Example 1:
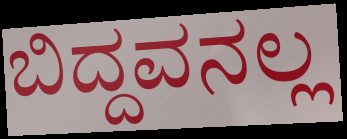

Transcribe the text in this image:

ಬಿದ್ದವನಲ್ಲ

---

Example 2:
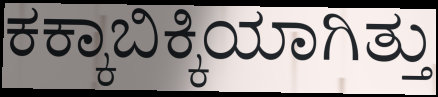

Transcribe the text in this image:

ಕಕ್ಕಾಬಿಕ್ಕಿಯಾಗಿತ್ತು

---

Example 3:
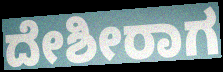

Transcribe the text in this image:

ದೇಶೀರಾಗ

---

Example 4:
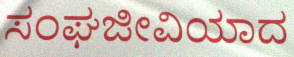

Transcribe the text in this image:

ಸಂಘಜೀವಿಯಾದ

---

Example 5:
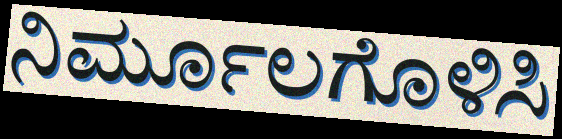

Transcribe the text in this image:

ನಿರ್ಮೂಲಗೊಳಿಸಿ